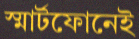
স্মার্টফোনেই